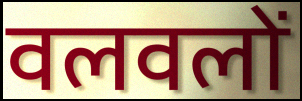
वलवलों